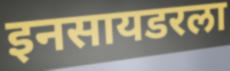
इनसायडरला